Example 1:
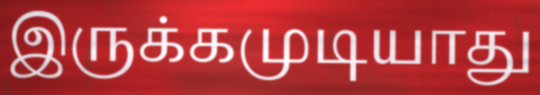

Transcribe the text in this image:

இருக்கமுடியாது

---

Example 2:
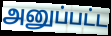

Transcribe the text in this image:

அனுப்பட்ட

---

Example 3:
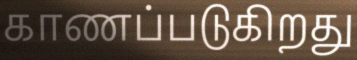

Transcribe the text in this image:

காணப்படுகிறது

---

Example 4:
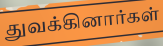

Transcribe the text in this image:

துவக்கினார்கள்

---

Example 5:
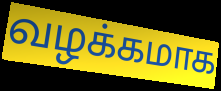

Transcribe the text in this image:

வழக்கமாக